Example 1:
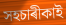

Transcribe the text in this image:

সহচাৰীকাই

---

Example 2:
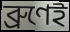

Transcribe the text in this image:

ব্ৰুণেই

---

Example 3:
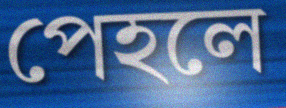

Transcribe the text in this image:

পেহলে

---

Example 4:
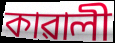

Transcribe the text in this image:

কাৱালী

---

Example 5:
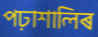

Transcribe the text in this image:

পঢ়াশালিৰ